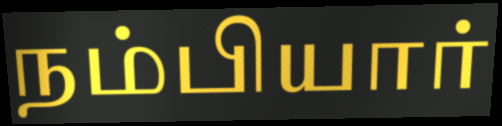
நம்பியார்